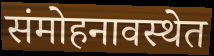
संमोहनावस्थेत